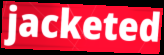
jacketed